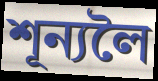
শূন্যলৈ